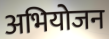
अभियोजन